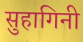
सुहागिनी